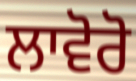
ਲਾਵੋਰੋ